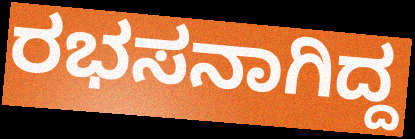
ರಭಸನಾಗಿದ್ದ